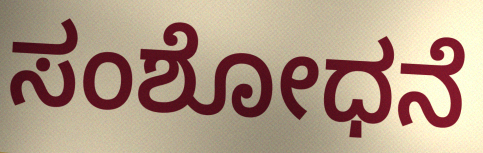
ಸಂಶೋಧನೆ